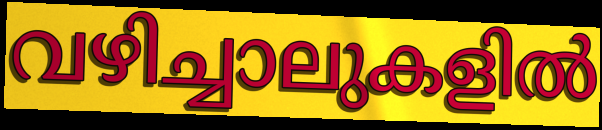
വഴിച്ചാലുകളിൽ